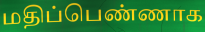
மதிப்பெண்ணாக